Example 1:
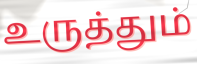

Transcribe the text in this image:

உருத்தும்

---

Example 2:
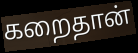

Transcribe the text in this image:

கறைதான்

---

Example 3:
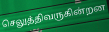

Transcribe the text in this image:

செலுத்திவருகின்றன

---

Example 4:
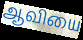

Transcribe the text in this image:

ஆவியை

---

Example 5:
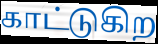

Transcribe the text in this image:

காட்டுகிற